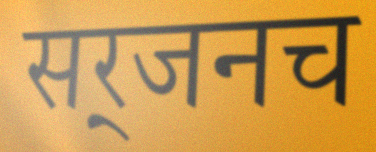
सर्जनच